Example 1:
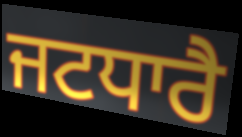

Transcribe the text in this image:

ਜਟਧਾਰੈ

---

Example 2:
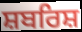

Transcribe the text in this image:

ਸ਼ਬਰਿਸ਼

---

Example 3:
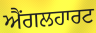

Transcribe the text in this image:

ਐਂਗਲਹਾਰਟ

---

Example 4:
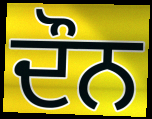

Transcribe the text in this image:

ਦੌਨ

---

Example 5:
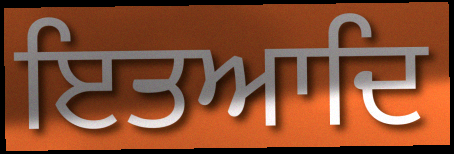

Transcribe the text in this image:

ਇਤਆਦਿ